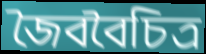
জৈববৈচিত্র